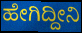
ಹೇಗಿದ್ದೀನಿ